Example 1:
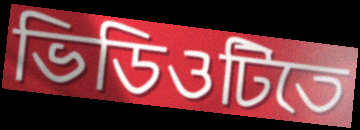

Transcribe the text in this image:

ভিডিওটিতে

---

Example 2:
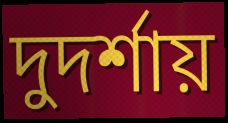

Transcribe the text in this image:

দুদর্শায়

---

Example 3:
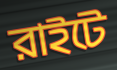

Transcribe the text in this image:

রাইটে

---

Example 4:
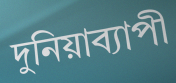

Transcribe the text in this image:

দুনিয়াব্যাপী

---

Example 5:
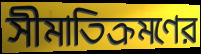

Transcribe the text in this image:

সীমাতিক্রমণের